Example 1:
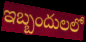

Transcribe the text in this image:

ఇబ్బందులలో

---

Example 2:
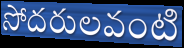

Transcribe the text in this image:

సోదరులవంటి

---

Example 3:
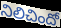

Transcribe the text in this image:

నిలిచిందో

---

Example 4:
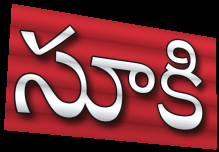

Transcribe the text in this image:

సూకి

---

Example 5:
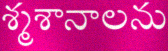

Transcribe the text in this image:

శ్మశానాలను